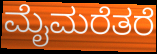
ಮೈಮರೆತರೆ